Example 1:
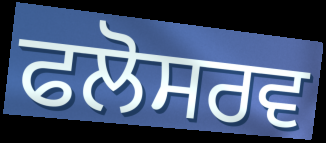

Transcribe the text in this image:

ਫਲੋਸਰਵ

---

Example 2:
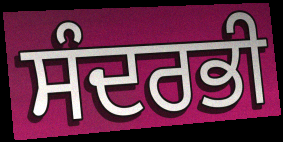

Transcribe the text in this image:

ਸੰਦਰਭੀ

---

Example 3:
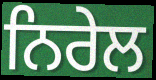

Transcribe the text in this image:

ਨਿਰੇਲ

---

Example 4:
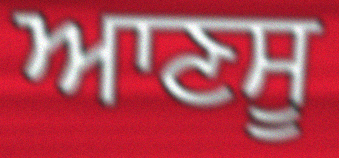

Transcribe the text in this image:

ਆਣਸੂ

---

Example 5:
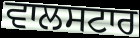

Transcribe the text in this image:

ਵਾਲਸਟਾਰ